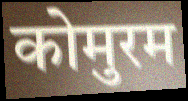
कोमुरम